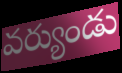
వర్యుండు